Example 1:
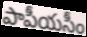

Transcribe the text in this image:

పాపీయసీం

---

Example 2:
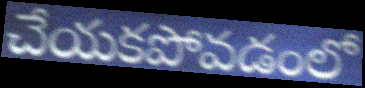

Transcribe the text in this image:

చేయకపోవడంలో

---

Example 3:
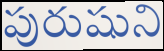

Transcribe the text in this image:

పురుషుని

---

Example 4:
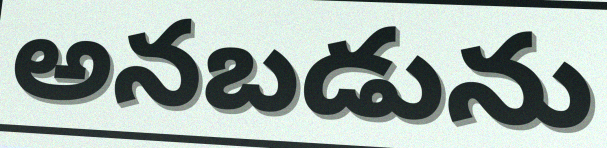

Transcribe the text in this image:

అనబడును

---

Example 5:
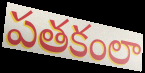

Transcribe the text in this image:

పతకంలా